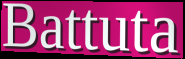
Battuta